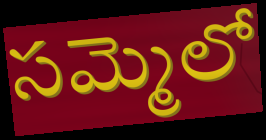
సమ్మెలో